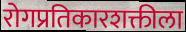
रोगप्रतिकारशक्तीला